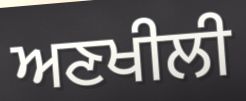
ਅਣਖੀਲੀ